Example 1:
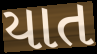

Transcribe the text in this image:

યાત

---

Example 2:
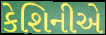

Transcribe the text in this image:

કેશિનીએ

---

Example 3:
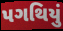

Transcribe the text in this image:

પગથિયું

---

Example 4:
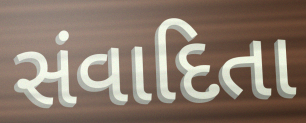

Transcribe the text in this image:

સંવાદિતા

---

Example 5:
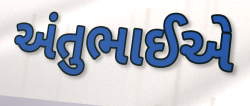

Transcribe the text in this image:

અંતુભાઈએ